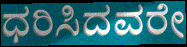
ಧರಿಸಿದವರೇ